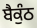
ਬੈਕੁੰਠ